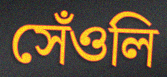
সেঁওলি